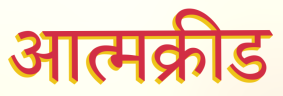
आत्मक्रीड